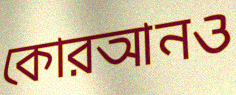
কোরআনও